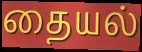
தையல்